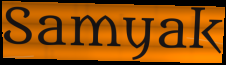
Samyak